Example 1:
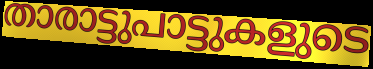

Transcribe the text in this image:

താരാട്ടുപാട്ടുകളുടെ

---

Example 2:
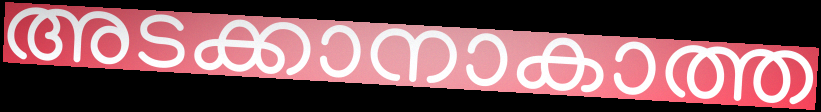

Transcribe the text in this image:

അടക്കാനാകാത്ത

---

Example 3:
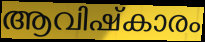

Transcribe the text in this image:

ആവിഷ്‌കാരം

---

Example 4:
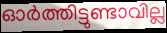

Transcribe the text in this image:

ഓർത്തിട്ടുണ്ടാവില്ല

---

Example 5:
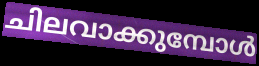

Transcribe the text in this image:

ചിലവാക്കുമ്പോൾ